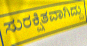
ಸುರಕ್ಷಿತವಾಗಿದ್ದು